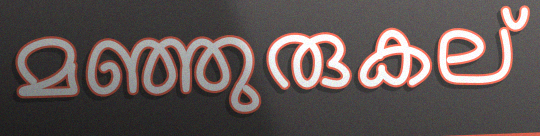
മഞ്ഞുരുകല്